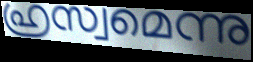
ഹ്രസ്വമെന്നു